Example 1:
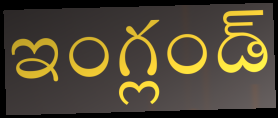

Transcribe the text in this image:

ఇంగ్లండ్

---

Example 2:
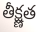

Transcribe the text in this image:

తీక్ష్ణత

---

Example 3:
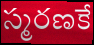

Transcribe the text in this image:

స్మరణకే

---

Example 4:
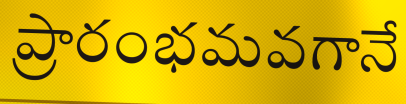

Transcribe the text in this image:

ప్రారంభమవగానే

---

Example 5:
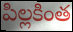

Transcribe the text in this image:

పిల్లకింత